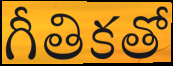
గీతికతో